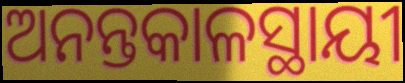
ଅନନ୍ତକାଳସ୍ଥାୟୀ